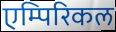
एम्पिरिकल